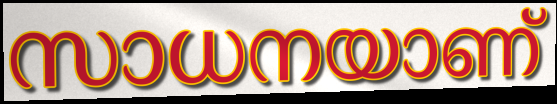
സാധനയാണ്